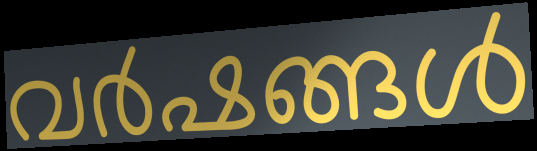
വർഷങ്ങൾ